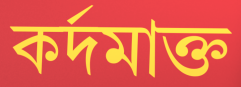
কর্দমাক্ত